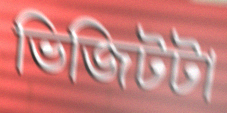
ভিজিটটা